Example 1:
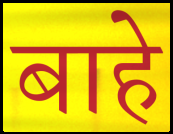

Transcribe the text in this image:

बाहे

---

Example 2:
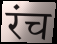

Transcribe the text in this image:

रंच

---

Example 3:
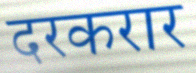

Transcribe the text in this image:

दरकरार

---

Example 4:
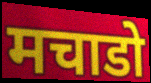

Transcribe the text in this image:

मचाडो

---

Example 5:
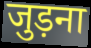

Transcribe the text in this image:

जुड़ना